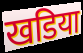
खडिया